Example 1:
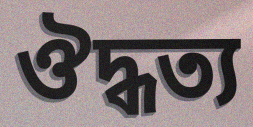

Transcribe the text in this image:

ঔদ্ধত্য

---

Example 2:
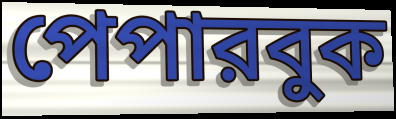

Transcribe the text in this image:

পেপারবুক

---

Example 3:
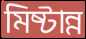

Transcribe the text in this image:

মিষ্টান্ন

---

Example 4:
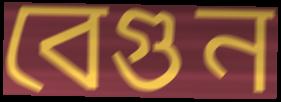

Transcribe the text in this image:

বেগুন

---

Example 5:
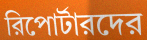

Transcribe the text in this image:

রিপোর্টারদের